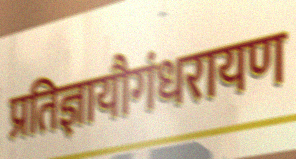
प्रतिज्ञायौगंधरायण